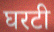
घरटी